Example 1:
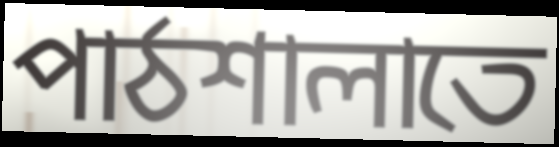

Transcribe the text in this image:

পাঠশালাতে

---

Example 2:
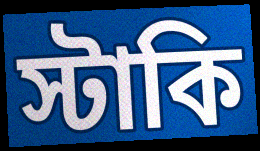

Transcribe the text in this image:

স্টাকি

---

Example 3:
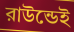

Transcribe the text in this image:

রাউন্ডেই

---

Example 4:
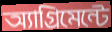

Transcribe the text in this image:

অ্যাগ্রিমেন্টে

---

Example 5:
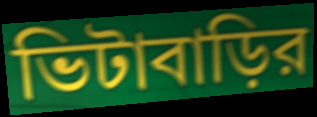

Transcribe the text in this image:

ভিটাবাড়ির